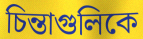
চিন্তাগুলিকে